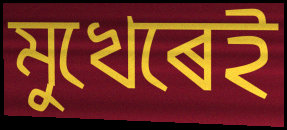
মুখেৰেই